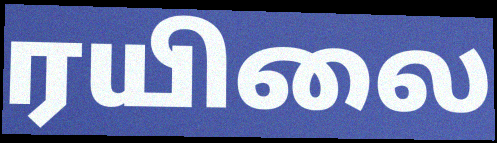
ரயிலை